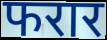
फरार